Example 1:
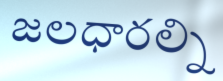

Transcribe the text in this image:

జలధారల్ని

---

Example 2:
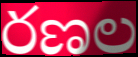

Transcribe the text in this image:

రణల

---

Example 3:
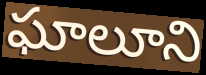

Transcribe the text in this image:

ఘాలూని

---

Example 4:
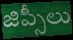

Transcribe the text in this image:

జిప్సీలు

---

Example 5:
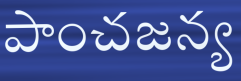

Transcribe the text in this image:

పాంచజన్య